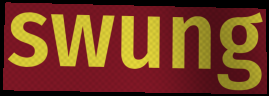
swung